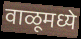
वाळूमध्ये